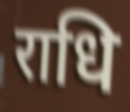
राधि